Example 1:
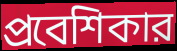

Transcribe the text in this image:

প্রবেশিকার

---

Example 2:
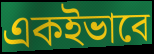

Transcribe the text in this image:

একইভাবে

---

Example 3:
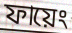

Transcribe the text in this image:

ফায়েং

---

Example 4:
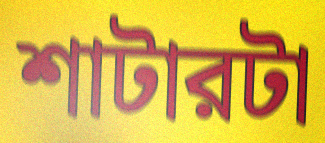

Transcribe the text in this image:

শাটারটা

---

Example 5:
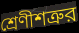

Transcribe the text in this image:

শ্রেণীশত্রুর